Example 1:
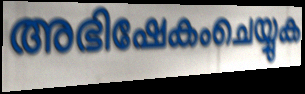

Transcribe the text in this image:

അഭിഷേകംചെയ്യുക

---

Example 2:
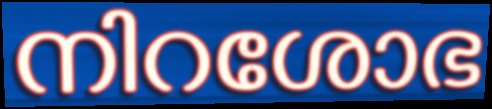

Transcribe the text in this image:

നിറശോഭ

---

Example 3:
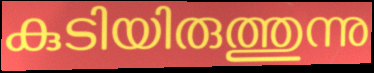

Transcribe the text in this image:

കുടിയിരുത്തുന്നു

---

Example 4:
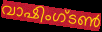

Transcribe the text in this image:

വാഷിംഗ്ടൺ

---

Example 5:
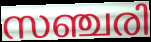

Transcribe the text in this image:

സഞ്ചരി